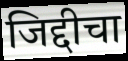
जिद्दीचा